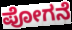
ಪೋಗನೆ